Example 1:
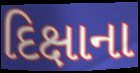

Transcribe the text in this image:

દિક્ષાના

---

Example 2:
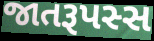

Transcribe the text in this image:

જાતરૂપસ્સ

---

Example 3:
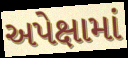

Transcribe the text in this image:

અપેક્ષામાં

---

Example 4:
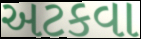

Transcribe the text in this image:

અટકવા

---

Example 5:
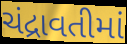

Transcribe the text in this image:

ચંદ્રાવતીમાં